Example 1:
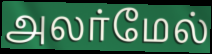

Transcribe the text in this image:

அலர்மேல்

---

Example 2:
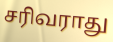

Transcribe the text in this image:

சரிவராது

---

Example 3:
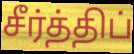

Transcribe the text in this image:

சீர்த்திப்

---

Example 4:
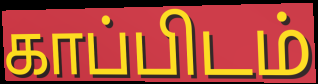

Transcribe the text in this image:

காப்பிடம்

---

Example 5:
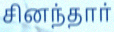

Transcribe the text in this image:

சினந்தார்